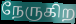
நேருகிற